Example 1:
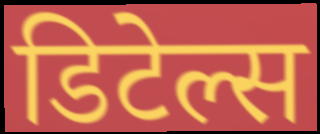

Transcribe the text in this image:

डिटेल्स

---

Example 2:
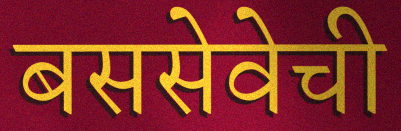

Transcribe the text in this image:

बससेवेची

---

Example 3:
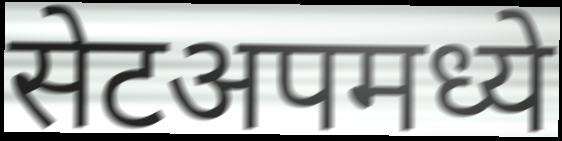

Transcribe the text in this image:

सेटअपमध्ये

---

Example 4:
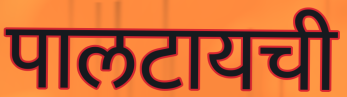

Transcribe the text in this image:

पालटायची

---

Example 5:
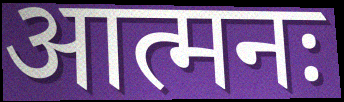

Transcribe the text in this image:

आत्मनः